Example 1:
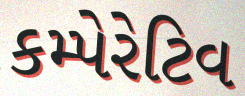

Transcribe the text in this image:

કમ્પેરેટિવ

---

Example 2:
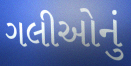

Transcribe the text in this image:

ગલીઓનું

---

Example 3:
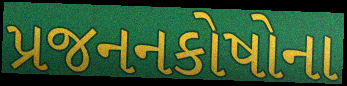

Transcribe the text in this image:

પ્રજનનકોષોના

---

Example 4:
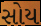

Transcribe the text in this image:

સોય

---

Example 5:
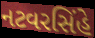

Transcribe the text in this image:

નટવરસિંહે